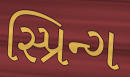
સ્પ્રિન્ગ